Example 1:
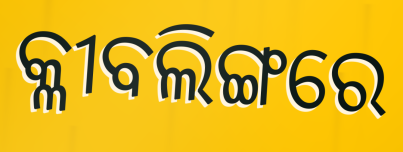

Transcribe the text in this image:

କ୍ଳୀବଲିଙ୍ଗରେ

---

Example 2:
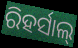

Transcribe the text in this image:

ରିହର୍ସାଲ୍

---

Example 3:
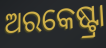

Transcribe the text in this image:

ଅରକେଷ୍ଟ୍ରା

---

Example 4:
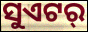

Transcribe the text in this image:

ସୁଏଟର୍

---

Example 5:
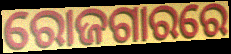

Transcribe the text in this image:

ରୋଜଗାରରେ